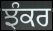
ਝੰਕਰ